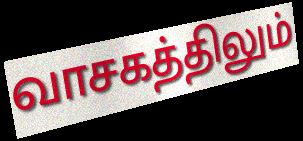
வாசகத்திலும்